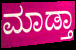
ಮಾಡ್ತಾ